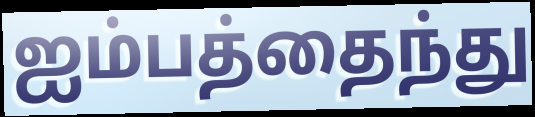
ஐம்பத்தைந்து